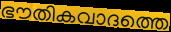
ഭൗതികവാദത്തെ